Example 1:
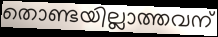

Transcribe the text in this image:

തൊണ്ടയില്ലാത്തവന്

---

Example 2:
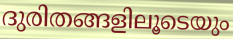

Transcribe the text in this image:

ദുരിതങ്ങളിലൂടെയും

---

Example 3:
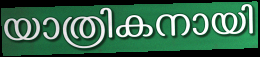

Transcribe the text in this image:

യാത്രികനായി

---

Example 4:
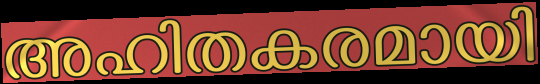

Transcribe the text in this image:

അഹിതകരമായി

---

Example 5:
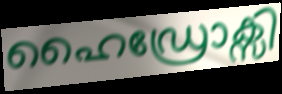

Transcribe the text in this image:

ഹൈഡ്രോക്സി